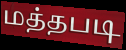
மத்தபடி